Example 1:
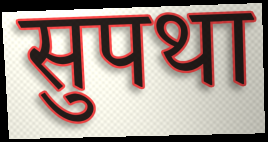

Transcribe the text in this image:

सुपथा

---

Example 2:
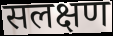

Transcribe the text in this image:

सलक्षण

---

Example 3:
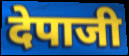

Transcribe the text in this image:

देपाजी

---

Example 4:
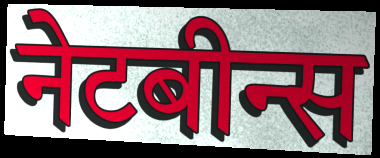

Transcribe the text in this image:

नेटबीन्स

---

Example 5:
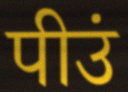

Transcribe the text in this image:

पीउं